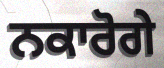
ਨਕਾਰੋਗੇ